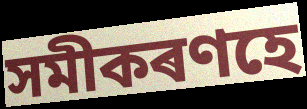
সমীকৰণহে